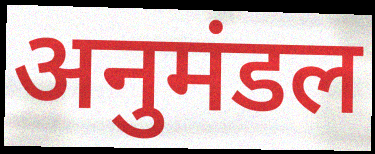
अनुमंडल